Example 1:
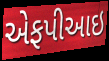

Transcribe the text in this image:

એફપીઆઇ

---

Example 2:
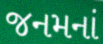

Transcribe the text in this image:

જનમનાં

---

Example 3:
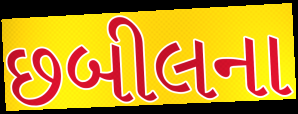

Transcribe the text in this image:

છબીલના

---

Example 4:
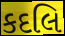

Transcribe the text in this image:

કદલિ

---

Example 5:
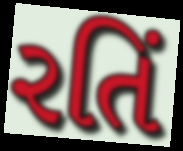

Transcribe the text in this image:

રતિં